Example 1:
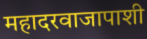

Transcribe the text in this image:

महादरवाजापाशी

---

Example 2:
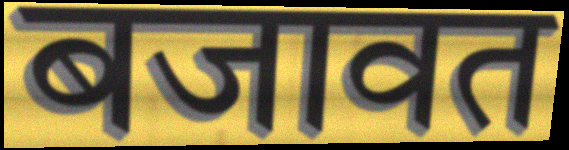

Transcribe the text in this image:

बजावत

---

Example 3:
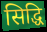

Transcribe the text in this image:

सिद्धि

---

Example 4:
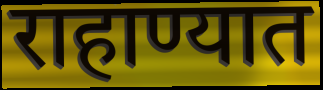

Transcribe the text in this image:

राहाण्यात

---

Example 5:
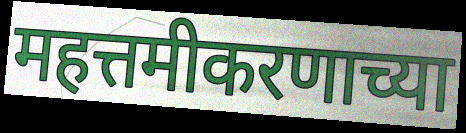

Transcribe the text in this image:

महत्तमीकरणाच्या